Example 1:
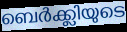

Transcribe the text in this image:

ബെർക്ക്ലിയുടെ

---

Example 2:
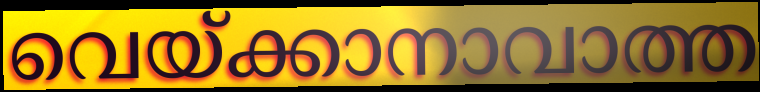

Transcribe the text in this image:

വെയ്ക്കാനാവാത്ത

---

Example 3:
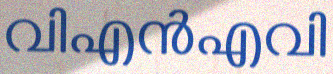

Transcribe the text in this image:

വിഎൻഎവി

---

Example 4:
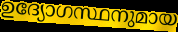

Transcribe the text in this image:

ഉദ്യോഗസ്ഥനുമായ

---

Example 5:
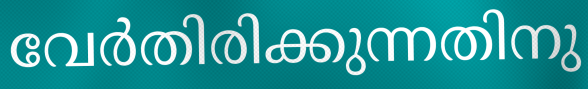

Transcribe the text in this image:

വേർതിരിക്കുന്നതിനു